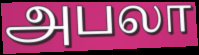
அபலா